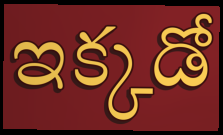
ఇక్కడో